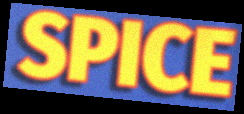
SPICE